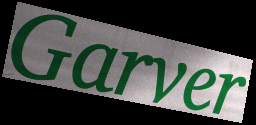
Garver